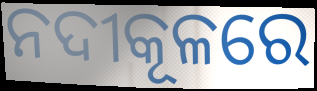
ନଦୀକୂଳରେ